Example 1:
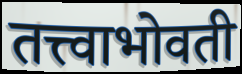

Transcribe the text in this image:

तत्त्वाभोवती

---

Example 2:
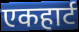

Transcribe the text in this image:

एकहार्ट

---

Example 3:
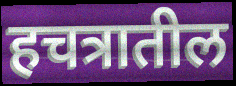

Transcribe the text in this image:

हचत्रातील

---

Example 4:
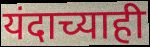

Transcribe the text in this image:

यंदाच्याही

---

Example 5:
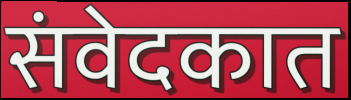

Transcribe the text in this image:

संवेदकात